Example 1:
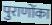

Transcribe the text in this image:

पुराणोंका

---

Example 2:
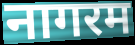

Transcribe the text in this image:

नागरम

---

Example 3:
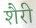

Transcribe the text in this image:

शैरी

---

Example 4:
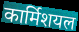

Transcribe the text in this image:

कार्मिशयल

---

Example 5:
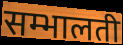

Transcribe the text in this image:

सम्भालती